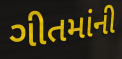
ગીતમાંની